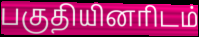
பகுதியினரிடம்